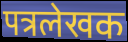
पत्रलेखक